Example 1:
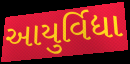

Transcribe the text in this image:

આયુર્વિદ્યા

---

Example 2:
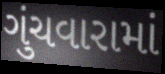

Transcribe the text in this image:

ગુંચવારામાં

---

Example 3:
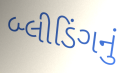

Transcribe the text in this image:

બ્લીડિંગનું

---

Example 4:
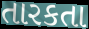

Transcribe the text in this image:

તારકતા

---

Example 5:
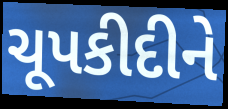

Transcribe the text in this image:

ચૂપકીદીને